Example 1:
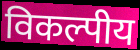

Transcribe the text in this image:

विकल्पीय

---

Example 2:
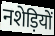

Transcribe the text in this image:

नशेड़ियों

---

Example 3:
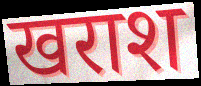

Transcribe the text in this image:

खराश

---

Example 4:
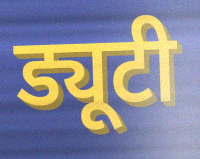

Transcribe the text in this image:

ड्यूटी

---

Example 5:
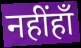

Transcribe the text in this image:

नहींहाँ